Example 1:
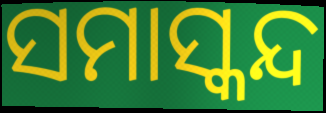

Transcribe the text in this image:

ସମାସ୍କନ୍ଦ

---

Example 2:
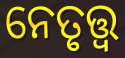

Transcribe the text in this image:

ନେତୃତ୍ତ୍ୱ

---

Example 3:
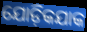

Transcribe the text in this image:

ଯୋଡ଼ିକଯାକ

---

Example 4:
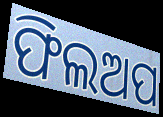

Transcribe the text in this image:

ଫିଲଅପ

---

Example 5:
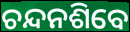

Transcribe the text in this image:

ଚନ୍ଦନଶିବେ